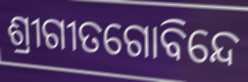
ଶ୍ରୀଗୀତଗୋବିନ୍ଦେ